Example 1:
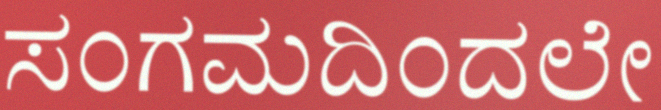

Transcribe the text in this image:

ಸಂಗಮದಿಂದಲೇ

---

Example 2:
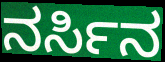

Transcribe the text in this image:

ನರ್ಸಿನ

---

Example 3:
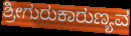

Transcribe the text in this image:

ಶ್ರೀಗುರುಕಾರುಣ್ಯವ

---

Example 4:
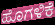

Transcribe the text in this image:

ಹೊಗಳಿಕೆ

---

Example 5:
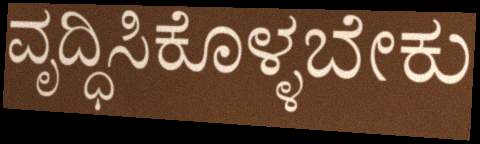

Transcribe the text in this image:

ವೃದ್ಧಿಸಿಕೊಳ್ಳಬೇಕು